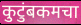
कुटुंबकमचा